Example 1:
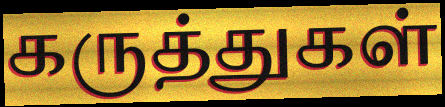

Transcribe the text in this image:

கருத்துகள்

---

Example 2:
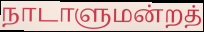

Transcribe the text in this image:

நாடாளுமன்றத்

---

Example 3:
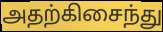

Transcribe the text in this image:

அதற்கிசைந்து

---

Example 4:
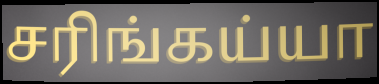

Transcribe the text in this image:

சரிங்கய்யா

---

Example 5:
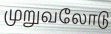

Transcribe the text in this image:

முறுவலோடு